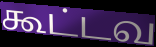
கூட்டவ